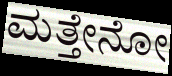
ಮತ್ತೇನೋ